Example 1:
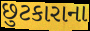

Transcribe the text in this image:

છુટકારાના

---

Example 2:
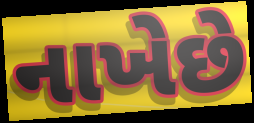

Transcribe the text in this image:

નાખેછે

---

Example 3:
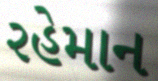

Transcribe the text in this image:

રહેમાન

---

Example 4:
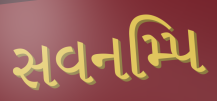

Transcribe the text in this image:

સવનમ્પિ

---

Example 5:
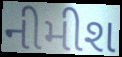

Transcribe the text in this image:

નીમીશ